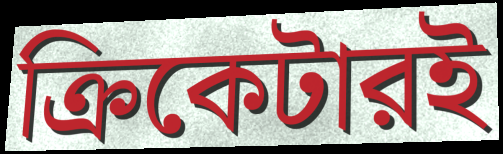
ক্রিকেটারই